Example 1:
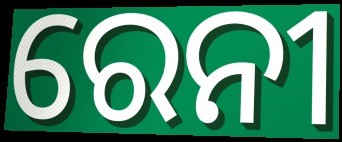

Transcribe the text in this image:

ରେନୀ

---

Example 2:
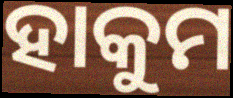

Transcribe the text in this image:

ହାକୁମ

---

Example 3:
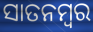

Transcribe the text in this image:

ସାତନମ୍ବର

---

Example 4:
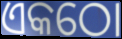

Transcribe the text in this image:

ଏକଠୋ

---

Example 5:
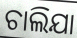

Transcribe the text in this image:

ଚାଲିଯା